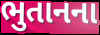
ભુતાનના